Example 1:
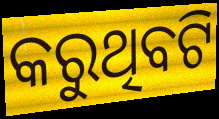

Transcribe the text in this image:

କରୁଥିବଟି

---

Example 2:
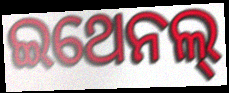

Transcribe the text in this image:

ଇଥେନଲ୍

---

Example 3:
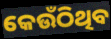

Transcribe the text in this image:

କେଉଁଠିଥିବ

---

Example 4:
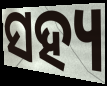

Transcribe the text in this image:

ସହ୍ୟ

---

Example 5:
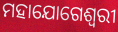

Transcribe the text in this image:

ମହାଯୋଗେଶ୍ୱରୀ